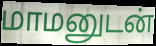
மாமனுடன்